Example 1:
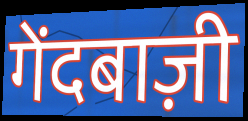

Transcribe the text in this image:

गेंदबाज़ी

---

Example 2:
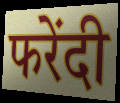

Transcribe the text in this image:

फरेंदी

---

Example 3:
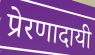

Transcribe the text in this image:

प्रेरणादायी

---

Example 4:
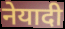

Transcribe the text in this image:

नेयादी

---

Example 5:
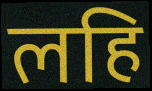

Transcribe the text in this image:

लहि